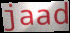
jaad